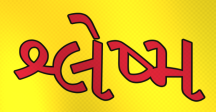
શ્લેષ્મ